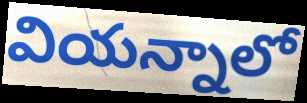
వియన్నాలో